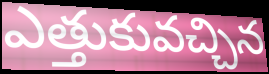
ఎత్తుకువచ్చిన